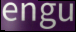
engu